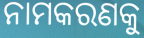
ନାମକରଣକୁ